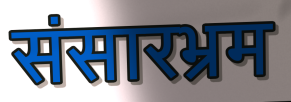
संसारभ्रम